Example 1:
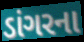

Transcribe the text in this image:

ડાંગરના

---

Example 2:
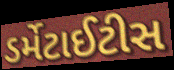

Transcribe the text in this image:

ડર્મેટાઈટીસ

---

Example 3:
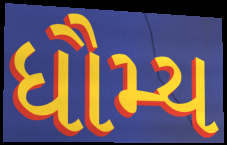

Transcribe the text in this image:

ધૌમ્ય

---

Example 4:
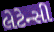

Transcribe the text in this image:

લેટેન્સી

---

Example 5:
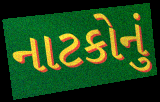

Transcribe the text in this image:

નાટકોનું